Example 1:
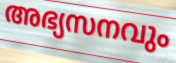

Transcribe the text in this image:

അഭ്യസനവും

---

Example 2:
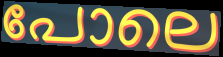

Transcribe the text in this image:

പോലെ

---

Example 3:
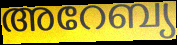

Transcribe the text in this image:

അറേബ്യ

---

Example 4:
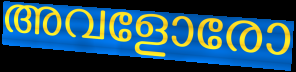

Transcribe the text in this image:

അവളോരോ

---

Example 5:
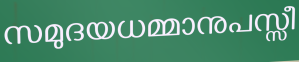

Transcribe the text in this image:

സമുദയധമ്മാനുപസ്സീ